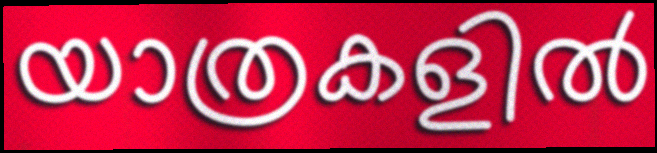
യാത്രകളിൽ